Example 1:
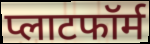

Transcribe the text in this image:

प्लाटफॉर्म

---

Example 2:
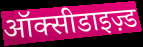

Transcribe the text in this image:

ऑक्सीडाइज़्ड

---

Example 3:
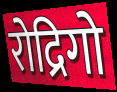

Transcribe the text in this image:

रोद्रिगो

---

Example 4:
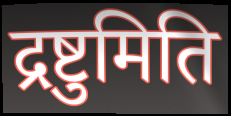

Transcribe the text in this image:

द्रष्टुमिति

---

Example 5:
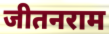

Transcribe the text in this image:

जीतनराम